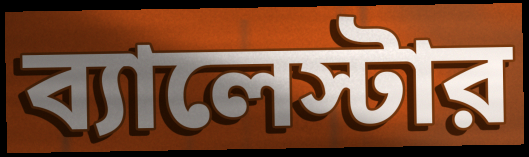
ব্যালেস্টার